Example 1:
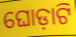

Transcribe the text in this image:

ଘୋଡ଼ାଟି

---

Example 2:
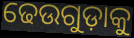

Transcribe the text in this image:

ଢେଉଗୁଡ଼ାକୁ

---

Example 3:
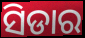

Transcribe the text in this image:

ସିଡାର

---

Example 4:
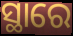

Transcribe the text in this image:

ସ୍ଥାରେ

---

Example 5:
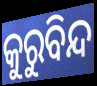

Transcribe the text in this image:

କୁରୁବିନ୍ଦ